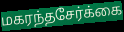
மகரந்தசேர்க்கை